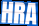
HRA